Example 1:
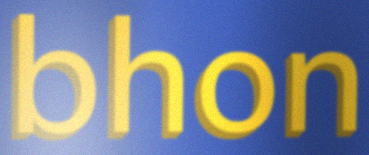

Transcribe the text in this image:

bhon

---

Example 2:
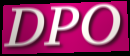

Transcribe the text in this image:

DPO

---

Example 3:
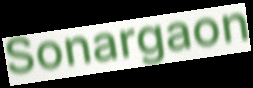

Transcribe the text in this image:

Sonargaon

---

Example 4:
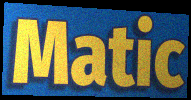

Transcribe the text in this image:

Matic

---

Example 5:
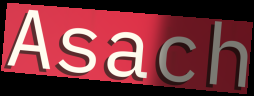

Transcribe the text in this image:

Asach